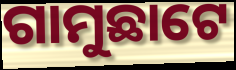
ଗାମୁଛାଟେ